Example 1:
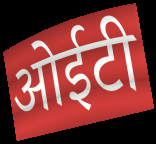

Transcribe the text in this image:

ओईटी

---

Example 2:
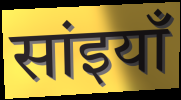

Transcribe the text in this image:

सांइयाँ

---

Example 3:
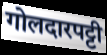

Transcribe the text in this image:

गोलदारपट्टी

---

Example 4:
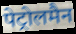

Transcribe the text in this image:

पेट्रोलमैन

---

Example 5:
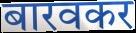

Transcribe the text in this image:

बारवकर